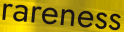
rareness